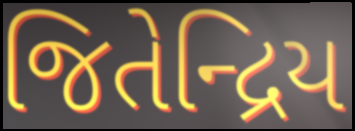
જિતેન્દ્રિય